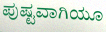
ಪುಷ್ಟವಾಗಿಯೂ